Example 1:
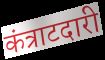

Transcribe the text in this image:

कंत्राटदारी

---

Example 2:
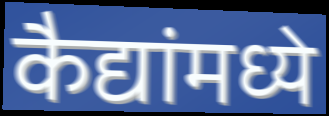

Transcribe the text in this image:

कैद्यांमध्ये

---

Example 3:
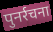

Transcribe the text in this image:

पुनर्रचना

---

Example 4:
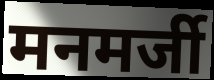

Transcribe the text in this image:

मनमर्जी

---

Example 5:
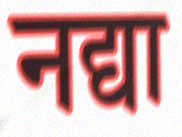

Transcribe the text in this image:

नद्या